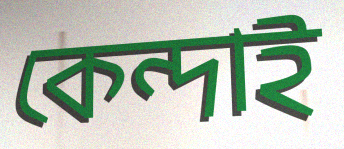
কেন্দাই